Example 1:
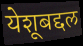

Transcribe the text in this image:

येशूबद्दल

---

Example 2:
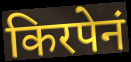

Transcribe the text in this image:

किरपेनं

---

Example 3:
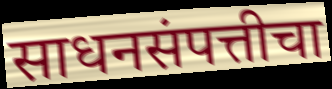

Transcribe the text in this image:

साधनसंपत्तीचा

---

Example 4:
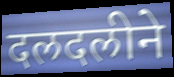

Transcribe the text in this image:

दलदलीने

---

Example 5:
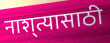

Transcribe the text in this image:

नाश्त्यासाठी